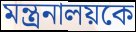
মন্ত্রনালয়কে